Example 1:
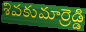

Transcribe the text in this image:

శివకుమార్రెడ్డి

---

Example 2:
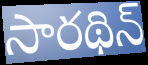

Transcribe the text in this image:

సారథిన్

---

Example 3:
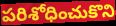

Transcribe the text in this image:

పరిశోధించుకొని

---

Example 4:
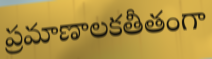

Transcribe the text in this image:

ప్రమాణాలకతీతంగా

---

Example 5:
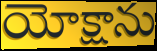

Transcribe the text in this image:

యోక్షాను